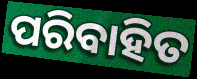
ପରିବାହିତ